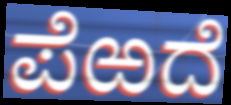
ಪೆಱದೆ